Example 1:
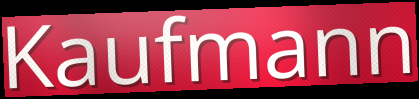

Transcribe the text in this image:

Kaufmann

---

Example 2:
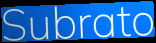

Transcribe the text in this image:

Subrato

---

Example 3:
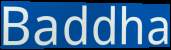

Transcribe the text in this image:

Baddha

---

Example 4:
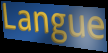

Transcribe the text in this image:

Langue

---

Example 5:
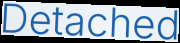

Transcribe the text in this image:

Detached